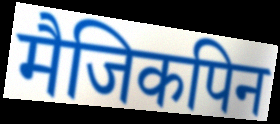
मैजिकपिन